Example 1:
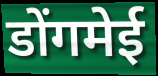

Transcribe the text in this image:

डोंगमेई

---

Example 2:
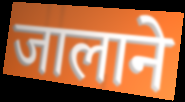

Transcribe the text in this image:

जालाने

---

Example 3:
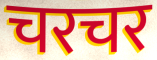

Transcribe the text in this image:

चरचर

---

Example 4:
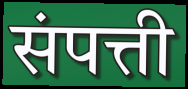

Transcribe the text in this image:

संपत्ती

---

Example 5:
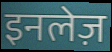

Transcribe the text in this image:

इनलेज़